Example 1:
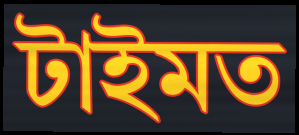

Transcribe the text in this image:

টাইমত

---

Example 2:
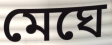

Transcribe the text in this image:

মেঘে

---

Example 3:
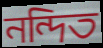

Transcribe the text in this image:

নন্দিত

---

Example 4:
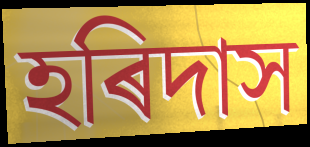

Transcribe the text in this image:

হৰিদাস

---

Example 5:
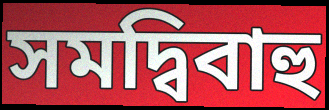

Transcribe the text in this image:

সমদ্বিবাহু